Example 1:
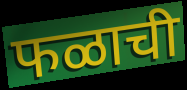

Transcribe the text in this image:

फळाची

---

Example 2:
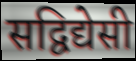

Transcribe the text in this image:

सद्विद्येसी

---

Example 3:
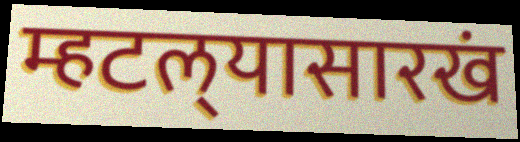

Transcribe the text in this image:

म्हटल्यासारखं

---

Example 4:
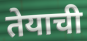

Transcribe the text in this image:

तेयाची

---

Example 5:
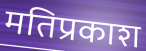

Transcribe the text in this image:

मतिप्रकाश